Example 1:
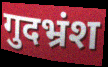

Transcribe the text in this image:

गुदभ्रंश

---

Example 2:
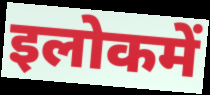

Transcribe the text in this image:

इलोकमें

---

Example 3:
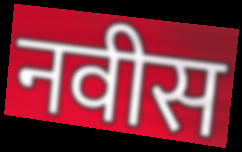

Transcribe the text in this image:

नवीस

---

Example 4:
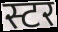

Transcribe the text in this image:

स्टर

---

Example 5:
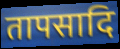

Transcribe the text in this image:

तापसादि